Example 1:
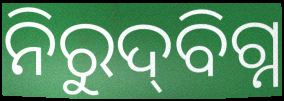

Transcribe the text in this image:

ନିରୁଦ୍‌ବିଗ୍ନ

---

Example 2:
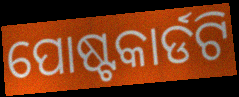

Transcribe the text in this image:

ପୋଷ୍ଟକାର୍ଡଟି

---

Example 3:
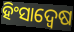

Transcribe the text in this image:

ହିଂସାଦ୍ୱେଷ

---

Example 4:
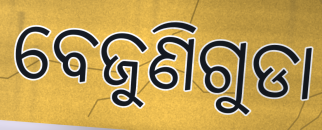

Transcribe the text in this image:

ବେଜୁଣିଗୁଡା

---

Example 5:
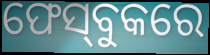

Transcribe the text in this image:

ଫେସ୍‌ବୁକରେ